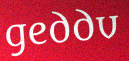
geddu